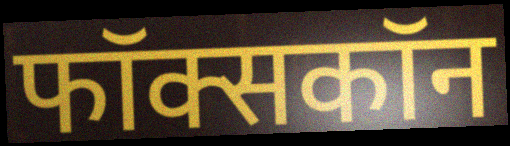
फॉक्सकॉन